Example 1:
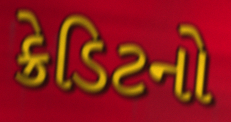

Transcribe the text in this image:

ક્રેડિટનો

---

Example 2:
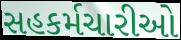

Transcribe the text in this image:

સહકર્મચારીઓ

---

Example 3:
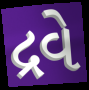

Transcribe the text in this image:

દ્રવે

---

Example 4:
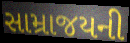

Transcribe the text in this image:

સામ્રાજયની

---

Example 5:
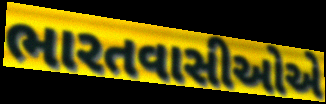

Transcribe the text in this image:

ભારતવાસીઓએ